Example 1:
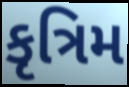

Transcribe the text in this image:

કૃત્રિમ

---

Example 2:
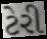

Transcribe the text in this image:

ટેરી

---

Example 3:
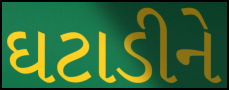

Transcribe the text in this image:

ઘટાડીને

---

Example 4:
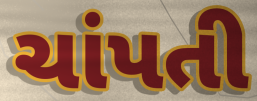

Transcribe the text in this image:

ચાંપતી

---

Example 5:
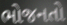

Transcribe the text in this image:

ભોજનતો